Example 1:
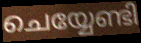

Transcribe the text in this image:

ചെയ്യേണ്ടി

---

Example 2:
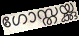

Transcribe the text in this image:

ഗോസ്തയ്ക്കു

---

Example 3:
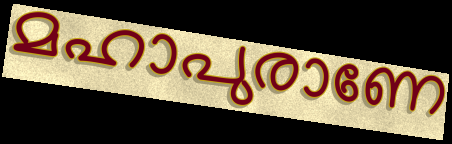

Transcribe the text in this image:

മഹാപുരാണേ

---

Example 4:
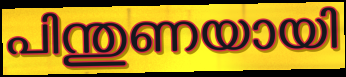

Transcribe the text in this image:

പിന്തുണയായി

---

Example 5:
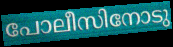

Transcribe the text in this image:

പോലീസിനോടു